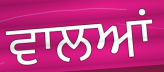
ਵਾਲਆਂ